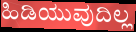
ಹಿಡಿಯುವುದಿಲ್ಲ